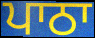
ਪਾਠਾ